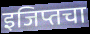
इजिप्तचा